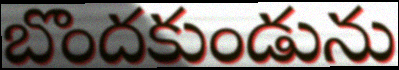
బొందకుండును